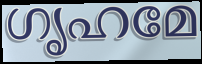
ഗൃഹമേ